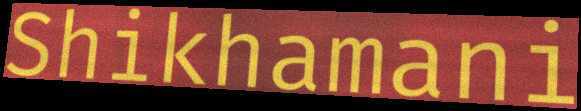
Shikhamani